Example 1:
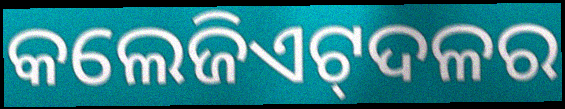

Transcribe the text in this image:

କଲେଜିଏଟ୍‍ଦଳର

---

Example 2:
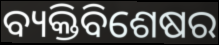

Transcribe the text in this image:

ବ୍ୟକ୍ତିବିଶେଷର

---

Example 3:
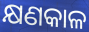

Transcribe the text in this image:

କ୍ଷଣକାଳ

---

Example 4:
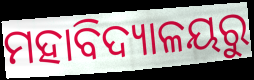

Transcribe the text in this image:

ମହାବିଦ୍ୟାଳୟରୁ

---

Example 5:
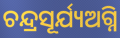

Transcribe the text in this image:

ଚନ୍ଦ୍ରସୂର୍ଯ୍ୟଅଗ୍ନି